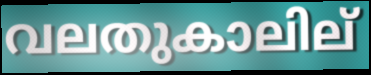
വലതുകാലില്